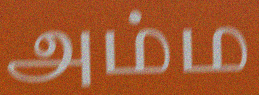
அம்ம